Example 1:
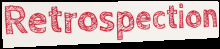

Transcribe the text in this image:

Retrospection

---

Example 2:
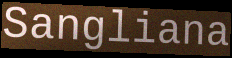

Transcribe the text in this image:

Sangliana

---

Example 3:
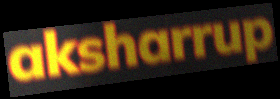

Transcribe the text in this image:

aksharrup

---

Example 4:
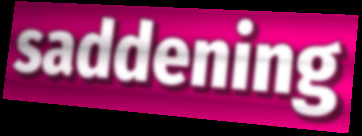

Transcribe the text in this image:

saddening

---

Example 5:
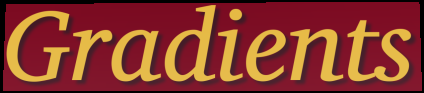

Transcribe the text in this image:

Gradients